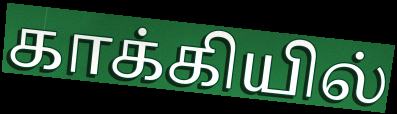
காக்கியில்